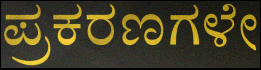
ಪ್ರಕರಣಗಳೇ